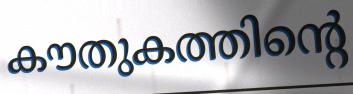
കൗതുകത്തിന്റെ